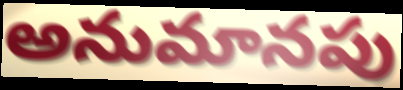
అనుమానపు